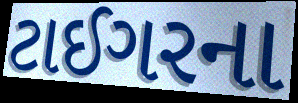
ટાઈગરના